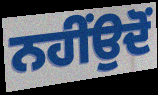
ਨਹੀਂਉਦੋਂ